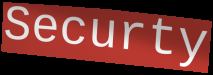
Securty